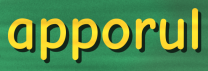
apporul